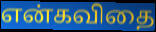
என்கவிதை